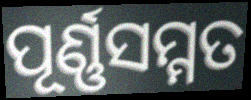
ପୂର୍ଣ୍ଣସମ୍ମତ